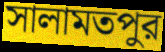
সালামতপুর